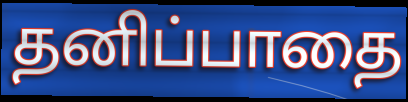
தனிப்பாதை